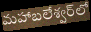
మహాబలేశ్వర్‌లో